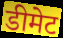
डीमेट